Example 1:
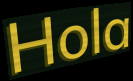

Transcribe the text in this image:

Hola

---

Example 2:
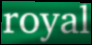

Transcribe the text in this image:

royal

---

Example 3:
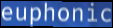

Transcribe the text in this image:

euphonic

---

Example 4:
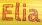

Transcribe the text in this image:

Elia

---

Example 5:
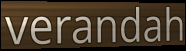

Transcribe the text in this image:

verandah